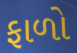
ફાળો